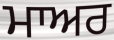
ਮਾਅਰ